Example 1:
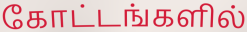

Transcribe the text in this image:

கோட்டங்களில்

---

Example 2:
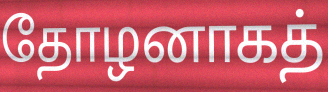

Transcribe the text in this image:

தோழனாகத்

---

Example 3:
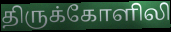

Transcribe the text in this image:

திருக்கோளிலி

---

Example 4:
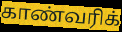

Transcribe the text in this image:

காண்வரிக்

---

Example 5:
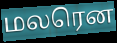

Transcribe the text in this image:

மலரென